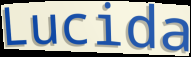
Lucida